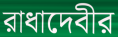
রাধাদেবীর